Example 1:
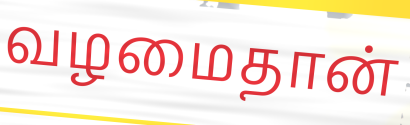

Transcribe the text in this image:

வழமைதான்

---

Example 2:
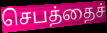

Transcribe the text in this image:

செபத்தைச்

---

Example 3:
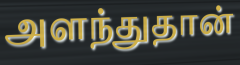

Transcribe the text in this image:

அளந்துதான்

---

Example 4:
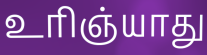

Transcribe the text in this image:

உரிஞ்யாது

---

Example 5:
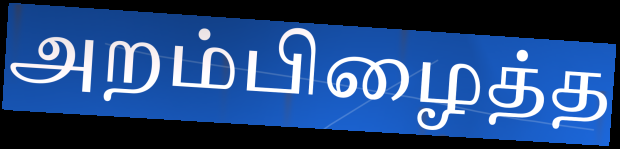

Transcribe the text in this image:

அறம்பிழைத்த